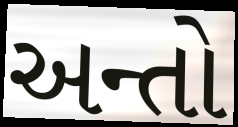
અન્તો